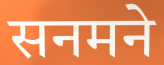
सनमने